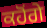
ਕਹੋਂਗੇ